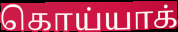
கொய்யாக்